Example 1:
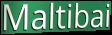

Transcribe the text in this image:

Maltibai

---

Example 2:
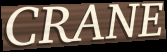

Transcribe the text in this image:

CRANE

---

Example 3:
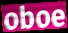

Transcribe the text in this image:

oboe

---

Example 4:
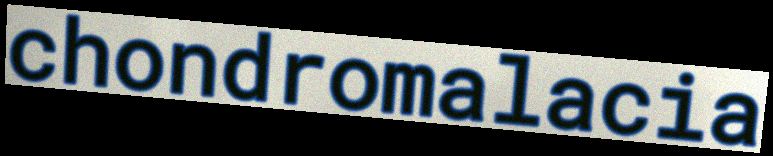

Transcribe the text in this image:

chondromalacia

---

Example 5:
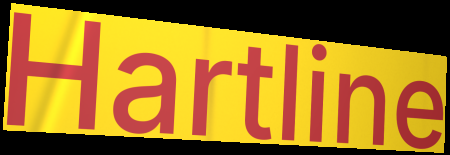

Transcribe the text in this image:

Hartline